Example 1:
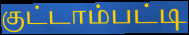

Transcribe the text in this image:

குட்டாம்பட்டி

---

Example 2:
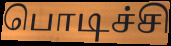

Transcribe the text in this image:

பொடிச்சி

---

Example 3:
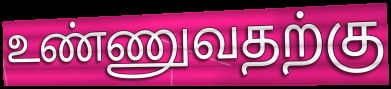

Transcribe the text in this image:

உண்ணுவதற்கு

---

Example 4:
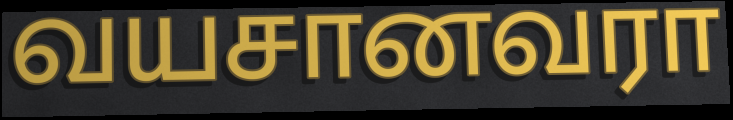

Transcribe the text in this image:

வயசானவரா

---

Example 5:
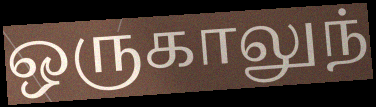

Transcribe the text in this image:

ஒருகாலுந்